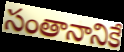
సంతానానికే